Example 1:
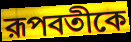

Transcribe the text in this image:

রূপবতীকে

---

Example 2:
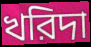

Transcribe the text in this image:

খরিদা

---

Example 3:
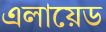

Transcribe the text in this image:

এলায়েড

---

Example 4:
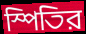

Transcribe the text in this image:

স্পিতির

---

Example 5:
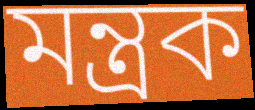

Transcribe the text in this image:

মন্ত্রক